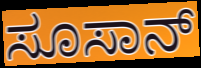
ಸೂಸಾನ್